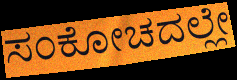
ಸಂಕೋಚದಲ್ಲೇ